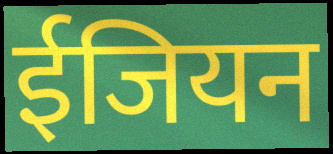
ईजियन